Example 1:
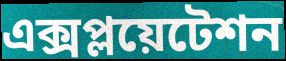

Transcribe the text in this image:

এক্সপ্লয়েটেশন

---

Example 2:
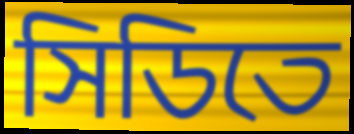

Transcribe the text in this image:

সিডিতে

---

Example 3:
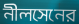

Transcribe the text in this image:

নীলসেনের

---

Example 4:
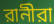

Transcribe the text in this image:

রানীরা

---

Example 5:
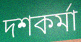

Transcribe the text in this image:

দশকর্মা